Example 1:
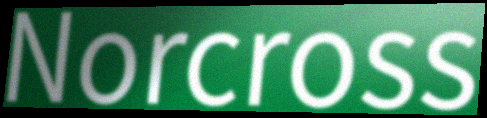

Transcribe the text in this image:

Norcross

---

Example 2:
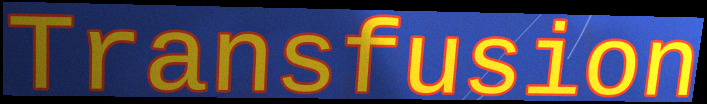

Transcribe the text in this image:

Transfusion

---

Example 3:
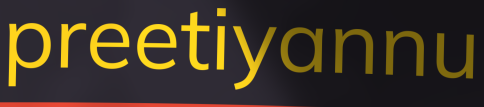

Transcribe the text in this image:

preetiyannu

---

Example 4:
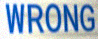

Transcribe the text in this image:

WRONG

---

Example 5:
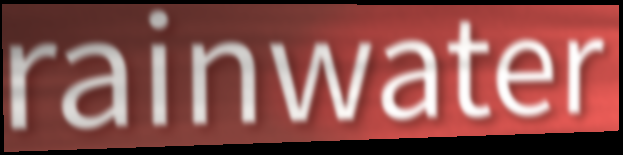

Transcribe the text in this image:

rainwater